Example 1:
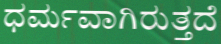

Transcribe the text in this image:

ಧರ್ಮವಾಗಿರುತ್ತದೆ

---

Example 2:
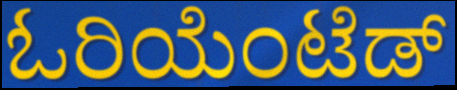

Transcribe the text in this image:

ಓರಿಯೆಂಟೆಡ್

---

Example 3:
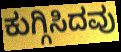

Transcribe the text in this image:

ಕುಗ್ಗಿಸಿದವು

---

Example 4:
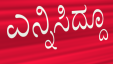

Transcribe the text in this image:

ಎನ್ನಿಸಿದ್ದೂ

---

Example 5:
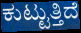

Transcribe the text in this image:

ಕುಟ್ಟುತ್ತಿದೆ